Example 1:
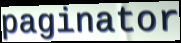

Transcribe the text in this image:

paginator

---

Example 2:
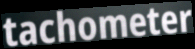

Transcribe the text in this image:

tachometer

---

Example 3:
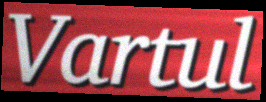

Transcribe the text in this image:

Vartul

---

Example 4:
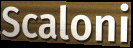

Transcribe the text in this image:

Scaloni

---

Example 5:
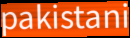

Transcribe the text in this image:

pakistani